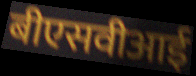
बीएसवीआई